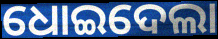
ଧୋଇଦେଲା